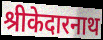
श्रीकेदारनाथ